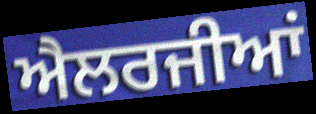
ਐਲਰਜੀਆਂ